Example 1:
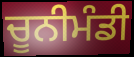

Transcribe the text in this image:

ਚੂਨੀਮੰਡੀ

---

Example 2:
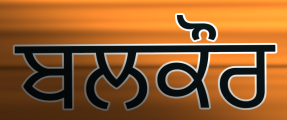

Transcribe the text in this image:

ਬਲਕੌਰ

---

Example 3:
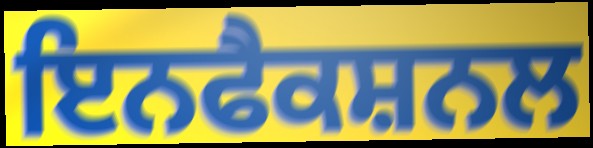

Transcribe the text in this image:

ਇਨਫੈਕਸ਼ਨਲ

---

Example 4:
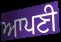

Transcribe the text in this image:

ਆਪਣੀ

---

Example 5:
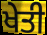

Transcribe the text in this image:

ਖੇਤੀ